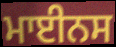
ਮਾਈਨਸ